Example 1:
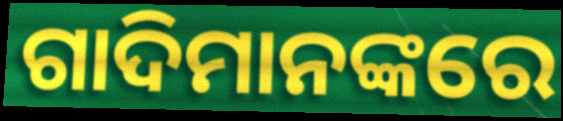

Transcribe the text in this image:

ଗାଦିମାନଙ୍କରେ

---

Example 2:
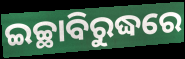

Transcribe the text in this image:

ଇଚ୍ଛାବିରୁଦ୍ଧରେ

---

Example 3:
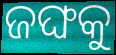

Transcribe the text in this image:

ଜଙ୍ଘକୁ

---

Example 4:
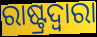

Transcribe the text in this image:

ରାଷ୍ଟ୍ରଦ୍ଵାରା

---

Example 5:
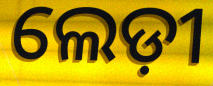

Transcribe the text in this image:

ଲେଡ଼ୀ